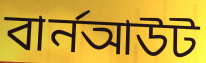
বার্নআউট